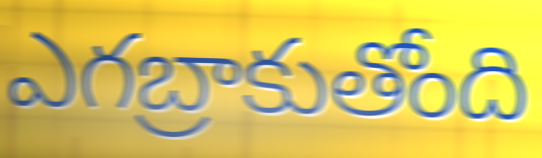
ఎగబ్రాకుతోంది